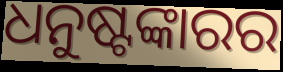
ଧନୁଷ୍ଟଙ୍କାରର